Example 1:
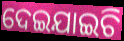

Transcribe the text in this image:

ଦେଇଯାଇଚି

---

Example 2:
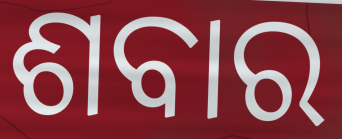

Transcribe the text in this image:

ଶବାର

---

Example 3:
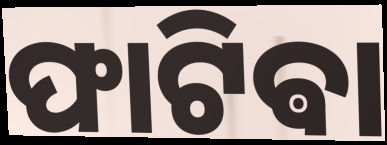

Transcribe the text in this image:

ଫାଟିଵା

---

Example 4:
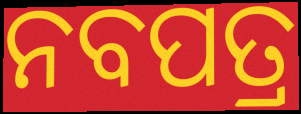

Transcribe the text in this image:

ନବପତ୍ର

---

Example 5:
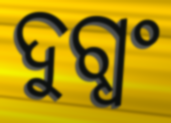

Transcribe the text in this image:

ଦୁଗ୍ଧଂ